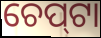
ଚେପ୍‍ଟା